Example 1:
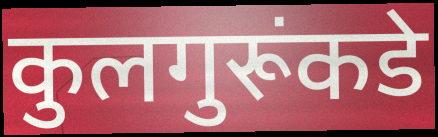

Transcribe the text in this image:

कुलगुरूंकडे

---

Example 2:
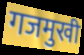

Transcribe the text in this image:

गजमुखी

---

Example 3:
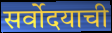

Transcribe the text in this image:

सर्वोदयाची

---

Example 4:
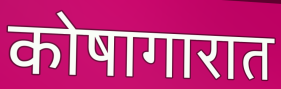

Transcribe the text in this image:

कोषागारात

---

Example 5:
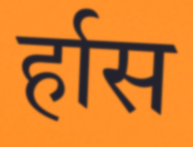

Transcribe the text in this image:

र्हास